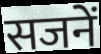
सजनें